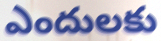
ఎందులకు